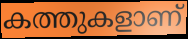
കത്തുകളാണ്